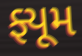
ફ્યૂમ